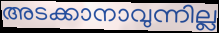
അടക്കാനാവുന്നില്ല